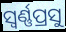
ସ୍ୱର୍ଣ୍ଣପ୍ରସୁ